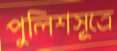
পুলিশসূত্রে